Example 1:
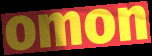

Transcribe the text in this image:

omon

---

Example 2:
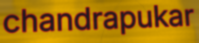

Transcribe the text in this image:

chandrapukar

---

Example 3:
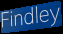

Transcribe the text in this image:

Findley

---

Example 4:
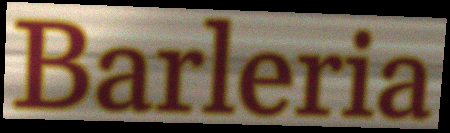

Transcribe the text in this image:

Barleria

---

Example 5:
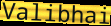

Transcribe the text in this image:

Valibhai